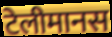
टेलीमानस